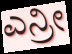
ಎನ್ರೀ